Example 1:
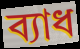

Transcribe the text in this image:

ব্যাধ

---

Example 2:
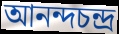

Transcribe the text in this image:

আনন্দচন্দ্র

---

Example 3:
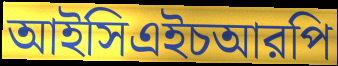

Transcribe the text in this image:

আইসিএইচআরপি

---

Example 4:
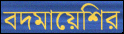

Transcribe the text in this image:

বদমায়েশির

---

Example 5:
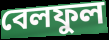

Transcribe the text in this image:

বেলফুল